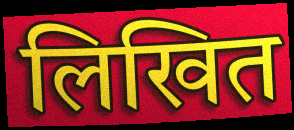
लिखित